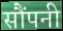
सौंपनी